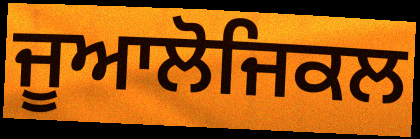
ਜੂਆਲੋਜਿਕਲ